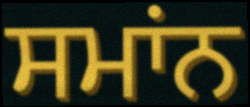
ਸਮਾਂਨ